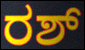
ರಶ್